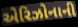
એરિઝોનાની